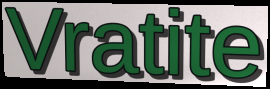
Vratite